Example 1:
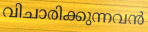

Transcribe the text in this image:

വിചാരിക്കുന്നവൻ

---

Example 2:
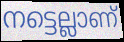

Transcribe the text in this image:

നട്ടെല്ലാണ്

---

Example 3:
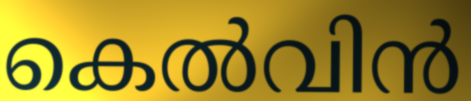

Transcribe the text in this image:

കെൽവിൻ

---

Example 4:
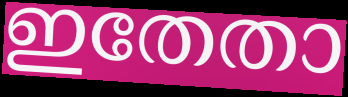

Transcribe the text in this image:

ഇതേതാ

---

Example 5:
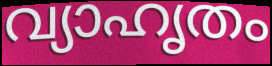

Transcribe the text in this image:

വ്യാഹൃതം